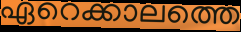
ഏറെക്കാലത്തെ